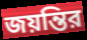
জয়ন্তির